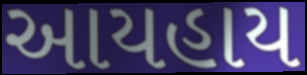
આયહાય